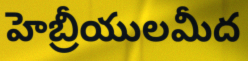
హెబ్రీయులమీద